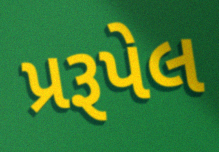
પ્રરૂપેલ